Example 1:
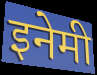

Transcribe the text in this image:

इनेमी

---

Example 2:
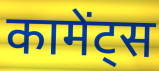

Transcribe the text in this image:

कामेंट्स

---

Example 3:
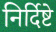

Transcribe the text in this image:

निर्दिष्टे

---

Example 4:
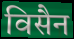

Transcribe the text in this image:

विसैन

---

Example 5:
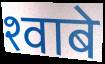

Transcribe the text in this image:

श्वाबे